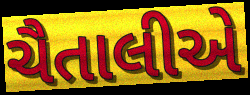
ચૈતાલીએ